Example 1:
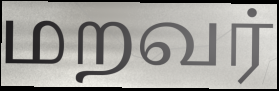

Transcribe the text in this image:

மறவர்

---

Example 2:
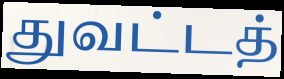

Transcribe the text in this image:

துவட்டத்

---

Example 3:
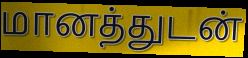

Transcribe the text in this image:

மானத்துடன்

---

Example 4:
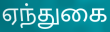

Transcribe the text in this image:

ஏந்துகை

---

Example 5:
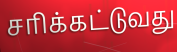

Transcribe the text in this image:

சரிக்கட்டுவது